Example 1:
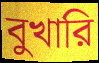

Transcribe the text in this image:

বুখারি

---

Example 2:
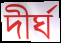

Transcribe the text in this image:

দীর্ঘ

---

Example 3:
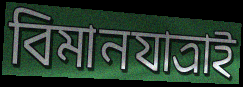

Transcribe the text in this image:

বিমানযাত্রাই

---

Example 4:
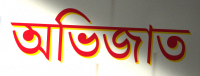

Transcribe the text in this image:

অভিজাত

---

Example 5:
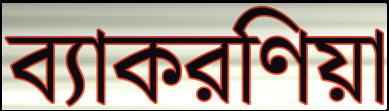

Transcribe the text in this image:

ব্যাকরণিয়া